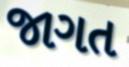
જાગત